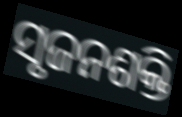
ସୃଜନଶକ୍ତି